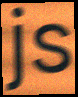
js